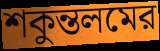
শকুন্তলমের